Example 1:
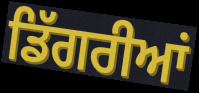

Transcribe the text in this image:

ਡਿੱਗਰੀਆਂ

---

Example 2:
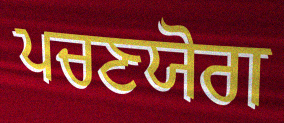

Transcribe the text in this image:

ਪਚਣਯੋਗ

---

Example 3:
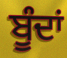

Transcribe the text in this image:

ਬੂੰਦਾਂ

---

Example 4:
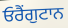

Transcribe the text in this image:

ਓਰੈਂਗੁਟਾਨ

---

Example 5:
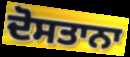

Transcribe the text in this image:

ਦੋਸਤਾਨਾ